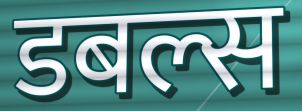
डबल्‍स